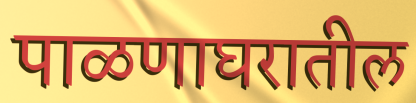
पाळणाघरातील